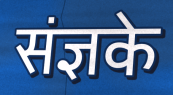
संज्ञके